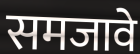
समजावे